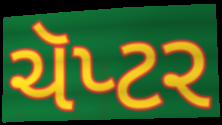
ચૅપ્ટર